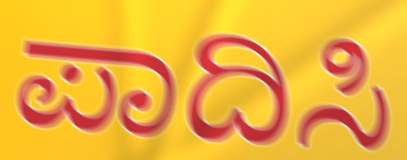
ಪಾದಿಸಿ